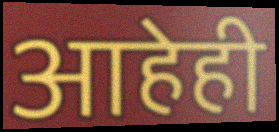
आहेही